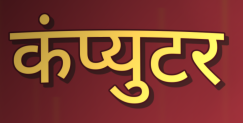
कंप्युटर